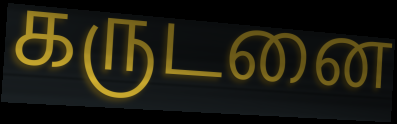
கருடனை